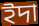
ইদা